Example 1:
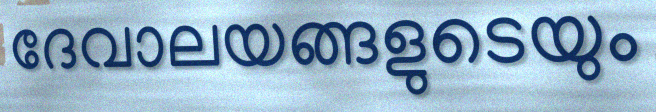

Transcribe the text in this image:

ദേവാലയങ്ങളുടെയും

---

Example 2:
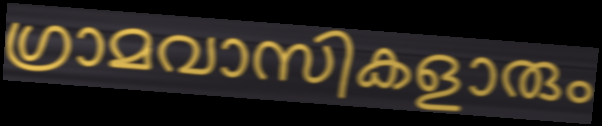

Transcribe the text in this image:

ഗ്രാമവാസികളാരും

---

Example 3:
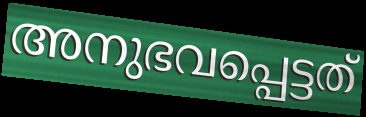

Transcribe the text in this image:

അനുഭവപ്പെട്ടത്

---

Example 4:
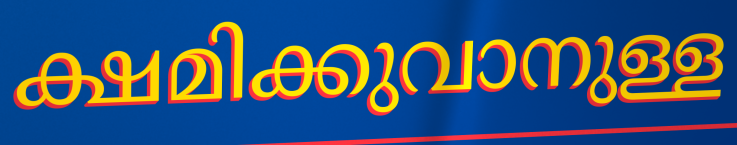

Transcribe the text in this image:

ക്ഷമിക്കുവാനുള്ള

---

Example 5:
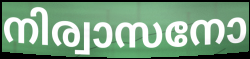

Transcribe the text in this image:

നിര്വാസനോ